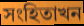
সংহিতাখন